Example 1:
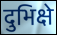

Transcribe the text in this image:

दुभिक्षे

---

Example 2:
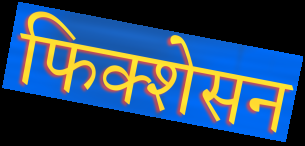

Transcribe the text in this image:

फिक्शेसन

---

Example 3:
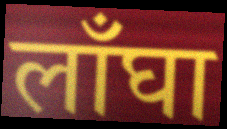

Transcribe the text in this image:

लाँघा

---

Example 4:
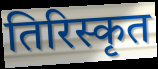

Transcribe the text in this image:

तिरिस्कृत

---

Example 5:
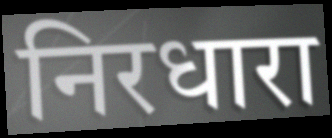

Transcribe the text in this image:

निरधारा